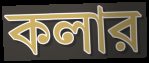
কলার